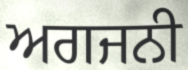
ਅਗਜਨੀ